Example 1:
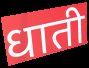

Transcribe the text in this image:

धाती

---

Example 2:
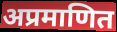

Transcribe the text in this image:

अप्रमाणित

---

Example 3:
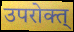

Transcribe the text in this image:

उपरोक्त्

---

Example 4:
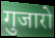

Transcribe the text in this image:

गुजारो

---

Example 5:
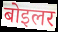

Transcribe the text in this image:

बोइलर